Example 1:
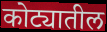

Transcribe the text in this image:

कोट्यातील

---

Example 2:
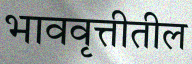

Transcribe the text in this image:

भाववृत्तीतील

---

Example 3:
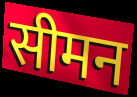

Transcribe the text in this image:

सीमन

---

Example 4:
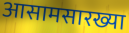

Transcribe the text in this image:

आसामसारख्या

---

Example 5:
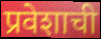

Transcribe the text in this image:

प्रवेशाची